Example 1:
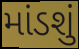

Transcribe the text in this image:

માંડશું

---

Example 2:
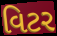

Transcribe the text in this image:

વિટર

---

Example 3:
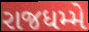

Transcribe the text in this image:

રાજધમ્મે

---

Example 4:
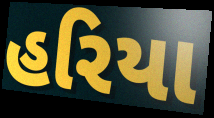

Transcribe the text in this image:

હરિયા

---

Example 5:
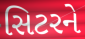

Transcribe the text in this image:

સિટરને